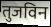
तुजविन